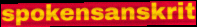
spokensanskrit